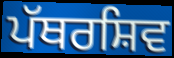
ਪੱਥਰਸ਼ਿਵ